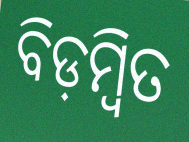
ବିଡ଼ମ୍ବିତ